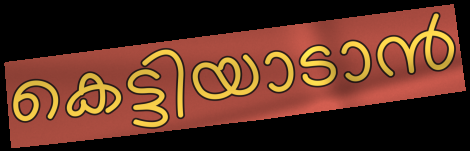
കെട്ടിയാടാൻ